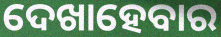
ଦେଖାହେବାର